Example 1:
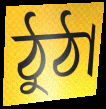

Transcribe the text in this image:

ঠুঠা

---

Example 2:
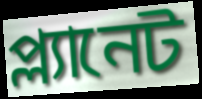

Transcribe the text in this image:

প্ল্যানেট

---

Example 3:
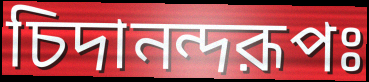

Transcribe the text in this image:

চিদানন্দরূপঃ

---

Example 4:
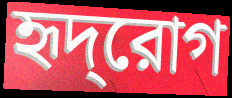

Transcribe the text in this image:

হৃদ্‌রোগ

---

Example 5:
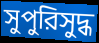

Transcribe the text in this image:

সুপুরিসুদ্ধ